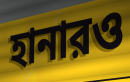
হানারও